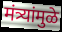
मंत्र्यांमुळे